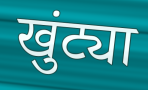
खुंट्या